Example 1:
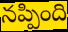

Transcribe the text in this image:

నప్పింది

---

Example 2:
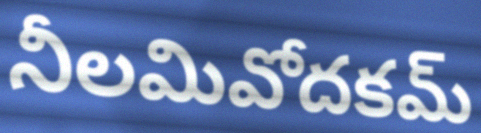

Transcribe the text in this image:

నీలమివోదకమ్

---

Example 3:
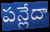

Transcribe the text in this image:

పన్లేదా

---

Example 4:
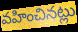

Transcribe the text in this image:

వహించినట్లు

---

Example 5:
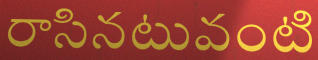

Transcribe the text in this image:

రాసినటువంటి